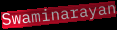
Swaminarayan